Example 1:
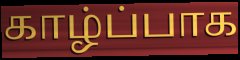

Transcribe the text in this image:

காழ்ப்பாக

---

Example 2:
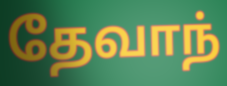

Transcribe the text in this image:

தேவாந்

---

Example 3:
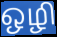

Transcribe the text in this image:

ஒழி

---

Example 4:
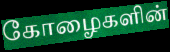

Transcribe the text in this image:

கோழைகளின்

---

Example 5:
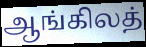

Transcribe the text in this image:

ஆங்கிலத்